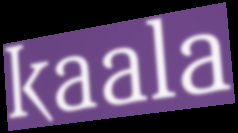
kaala